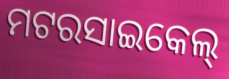
ମଟରସାଇକେଲ୍